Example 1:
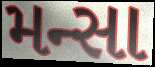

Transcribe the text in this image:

મન્સા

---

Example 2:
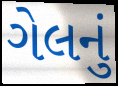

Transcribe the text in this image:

ગેલનું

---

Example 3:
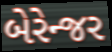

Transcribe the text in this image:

બેરેન્જર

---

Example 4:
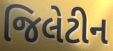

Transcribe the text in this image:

જિલેટીન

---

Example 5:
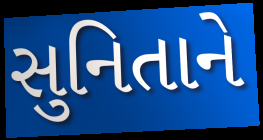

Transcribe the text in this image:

સુનિતાને